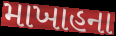
માખાહના